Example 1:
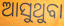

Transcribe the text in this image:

ଆସୁଥୁବା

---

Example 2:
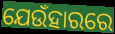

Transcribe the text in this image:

ଯେଉଁହାରରେ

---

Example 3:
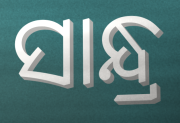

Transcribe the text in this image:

ସାନ୍ଧ୍ର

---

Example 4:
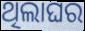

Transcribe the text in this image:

ଥିଲାଘର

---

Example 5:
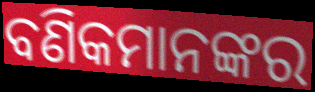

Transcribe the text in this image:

ବଣିକମାନଙ୍କର